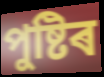
পুষ্টিৰ